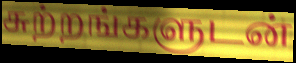
சுற்றங்களுடன்